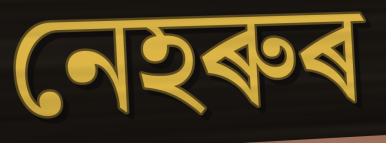
নেহৰুৰ